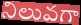
నిలువగా